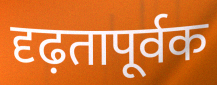
दृढ़तापूर्वक